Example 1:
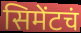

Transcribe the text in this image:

सिमेंटचं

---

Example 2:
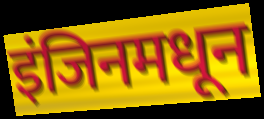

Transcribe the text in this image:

इंजिनमधून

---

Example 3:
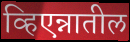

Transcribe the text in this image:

व्हिएन्नातील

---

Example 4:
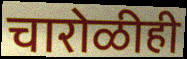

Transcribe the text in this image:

चारोळीही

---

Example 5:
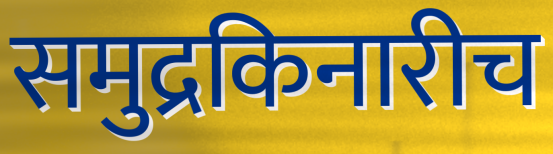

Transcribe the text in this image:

समुद्रकिनारीच